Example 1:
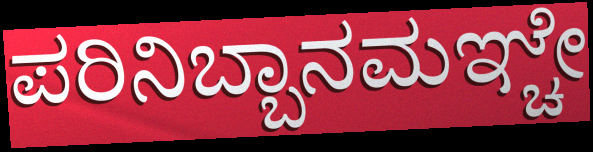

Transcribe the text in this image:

ಪರಿನಿಬ್ಬಾನಮಞ್ಚೇ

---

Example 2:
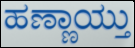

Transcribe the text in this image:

ಹಣ್ಣಾಯ್ತು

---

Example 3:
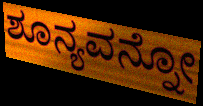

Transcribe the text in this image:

ಶೂನ್ಯವನ್ನೋ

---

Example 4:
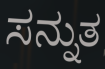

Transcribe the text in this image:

ಸನ್ನುತ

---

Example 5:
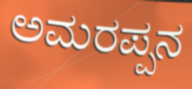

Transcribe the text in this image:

ಅಮರಪ್ಪನ